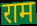
राम